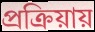
প্রক্রিয়ায়